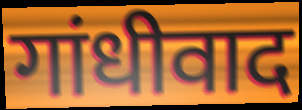
गांधीवाद